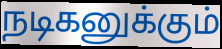
நடிகனுக்கும்